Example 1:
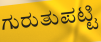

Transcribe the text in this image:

ಗುರುತುಪಟ್ಟಿ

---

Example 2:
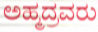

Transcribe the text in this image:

ಅಹ್ಮದ್ರವರು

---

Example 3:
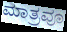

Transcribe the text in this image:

ಮಾತ್ರವೂ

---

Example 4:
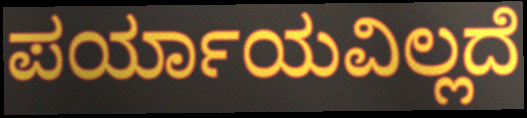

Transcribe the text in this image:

ಪರ್ಯಾಯವಿಲ್ಲದೆ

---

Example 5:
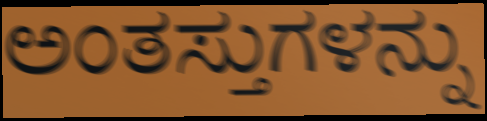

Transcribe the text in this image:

ಅಂತಸ್ತುಗಳನ್ನು